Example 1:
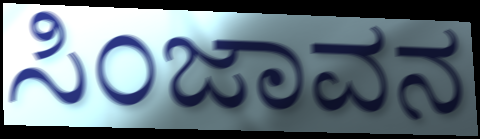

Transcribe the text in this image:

ಸಿಂಜಾವನ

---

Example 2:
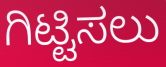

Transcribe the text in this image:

ಗಿಟ್ಟಿಸಲು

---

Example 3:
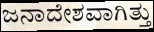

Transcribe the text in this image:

ಜನಾದೇಶವಾಗಿತ್ತು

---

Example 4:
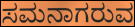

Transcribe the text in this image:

ಸಮನಾಗರುವ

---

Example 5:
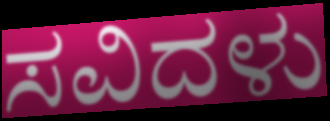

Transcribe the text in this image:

ಸವಿದಳು